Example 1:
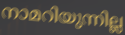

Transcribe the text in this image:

നാമറിയുന്നില്ല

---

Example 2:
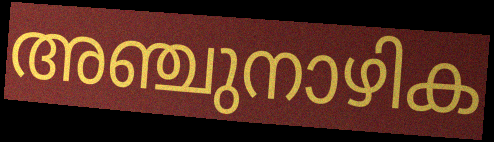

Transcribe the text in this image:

അഞ്ചുനാഴിക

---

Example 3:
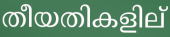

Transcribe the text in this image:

തീയതികളില്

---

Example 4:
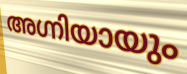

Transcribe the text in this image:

അഗ്നിയായും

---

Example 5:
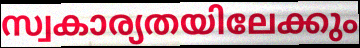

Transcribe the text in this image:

സ്വകാര്യതയിലേക്കും